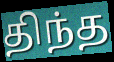
திந்த